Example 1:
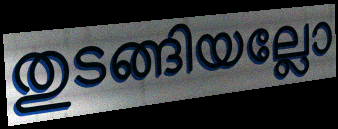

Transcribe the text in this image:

തുടങ്ങിയല്ലോ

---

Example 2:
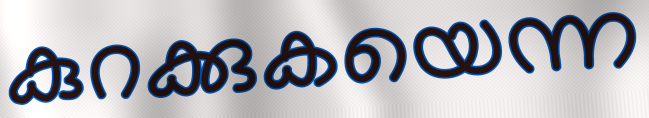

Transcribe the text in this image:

കുറക്കുകയെന്ന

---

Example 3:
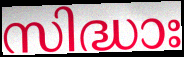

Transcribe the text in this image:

സിദ്ധാഃ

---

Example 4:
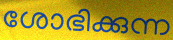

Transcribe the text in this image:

ശോഭിക്കുന്ന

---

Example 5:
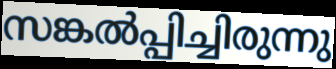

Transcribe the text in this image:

സങ്കൽപ്പിച്ചിരുന്നു